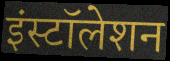
इंस्टॉलेशन